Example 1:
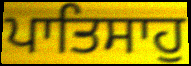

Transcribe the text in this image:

ਪਾਤਿਸਾਹੁ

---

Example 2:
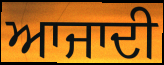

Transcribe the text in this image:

ਆਜਾਦੀ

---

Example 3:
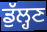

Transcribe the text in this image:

ਡੁੱਲ੍ਹਣ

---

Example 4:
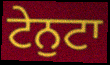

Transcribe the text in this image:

ਟੇਨੁਟਾ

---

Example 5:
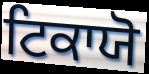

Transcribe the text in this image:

ਟਿਕਾਯੋ